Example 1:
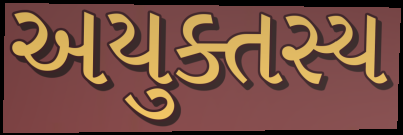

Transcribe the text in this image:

અયુક્તસ્ય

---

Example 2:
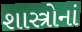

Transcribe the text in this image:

શાસ્ત્રોનાં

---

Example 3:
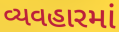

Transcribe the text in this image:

વ્યવહારમાં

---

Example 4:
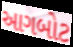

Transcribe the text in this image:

આગબોટ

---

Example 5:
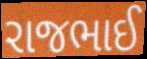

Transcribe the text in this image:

રાજભાઈ